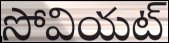
సోవియట్